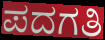
ಪದಗತಿ